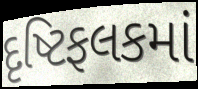
દૃષ્ટિફલકમાં